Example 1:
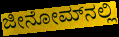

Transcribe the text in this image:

ಜೀನೋಮ್‌ನಲ್ಲಿ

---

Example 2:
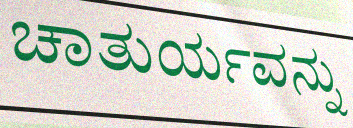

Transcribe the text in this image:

ಚಾತುರ್ಯವನ್ನು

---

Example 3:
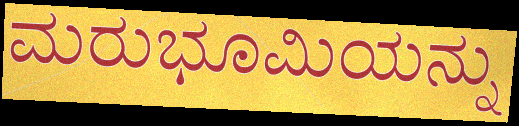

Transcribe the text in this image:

ಮರುಭೂಮಿಯನ್ನು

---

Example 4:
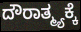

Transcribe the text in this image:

ದೌರಾತ್ಮ್ಯಕ್ಕೆ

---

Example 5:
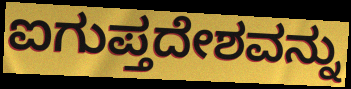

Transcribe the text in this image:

ಐಗುಪ್ತದೇಶವನ್ನು